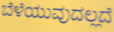
ಬೆಳೆಯುವುದಲ್ಲದೆ